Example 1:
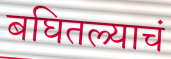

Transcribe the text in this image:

बघितल्याचं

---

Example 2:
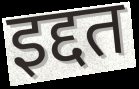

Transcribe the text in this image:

इद्दत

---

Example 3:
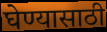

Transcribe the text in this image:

घेण्यासाठी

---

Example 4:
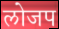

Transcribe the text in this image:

लोजप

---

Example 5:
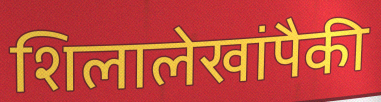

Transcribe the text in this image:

शिलालेखांपैकी